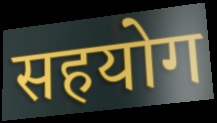
सहयोग